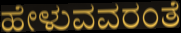
ಹೇಳುವವರಂತೆ